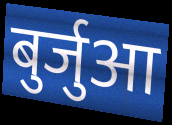
बुर्जुआ